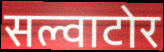
सल्वाटोर